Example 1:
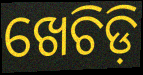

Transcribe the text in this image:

ଖେଚିଡ଼ି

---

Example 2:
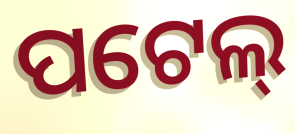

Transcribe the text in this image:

ପଟେଲ୍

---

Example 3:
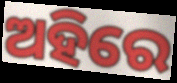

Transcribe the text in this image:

ଅହିରେ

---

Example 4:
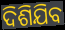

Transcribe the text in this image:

ଦିଶିଯିବ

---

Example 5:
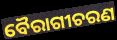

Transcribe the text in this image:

ବୈରାଗୀଚରଣ